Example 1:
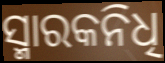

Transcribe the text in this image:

ସ୍ମାରକନିଧି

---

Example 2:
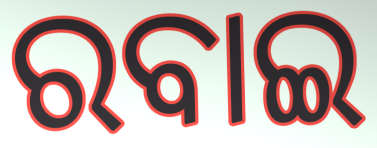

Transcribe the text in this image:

ରବାଇ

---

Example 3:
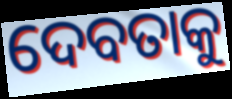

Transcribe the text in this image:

ଦେବତାକୁ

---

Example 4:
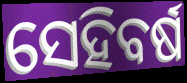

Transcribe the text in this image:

ସେହିବର୍ଷ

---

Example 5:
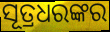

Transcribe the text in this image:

ସୂତ୍ରଧରଙ୍କର